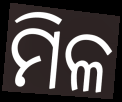
ମିଳ